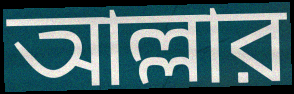
আল্লার